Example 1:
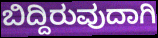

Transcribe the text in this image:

ಬಿದ್ದಿರುವುದಾಗಿ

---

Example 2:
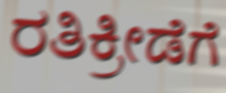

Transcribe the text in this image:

ರತಿಕ್ರೀಡೆಗೆ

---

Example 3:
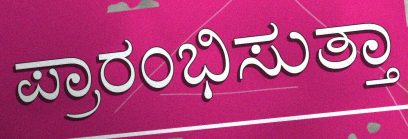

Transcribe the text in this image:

ಪ್ರಾರಂಭಿಸುತ್ತಾ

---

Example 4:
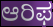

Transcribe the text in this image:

ಆರಿಫ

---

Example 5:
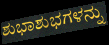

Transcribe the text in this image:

ಶುಭಾಶುಭಗಳನ್ನು